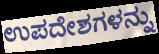
ಉಪದೇಶಗಳನ್ನು